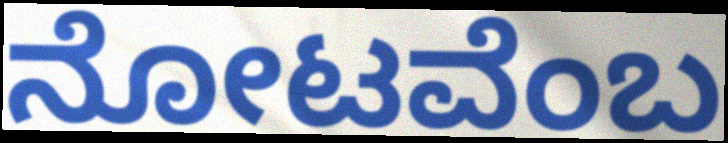
ನೋಟವೆಂಬ